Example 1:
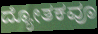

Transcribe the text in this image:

ದ್ಯೋತಕವೂ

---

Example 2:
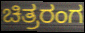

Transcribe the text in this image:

ಚಿತ್ರರಂಗ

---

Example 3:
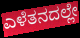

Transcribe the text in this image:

ಎಳೆತನದಲ್ಲೇ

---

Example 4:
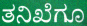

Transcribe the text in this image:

ತನಿಖೆಗೂ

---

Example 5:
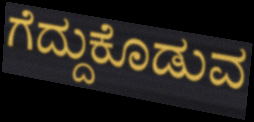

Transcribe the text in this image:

ಗೆದ್ದುಕೊಡುವ